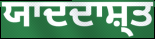
ਯਾਦਦਾਸ਼੍ਤ